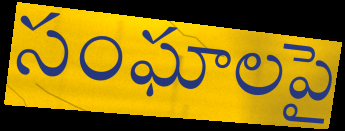
సంఘాలపై